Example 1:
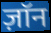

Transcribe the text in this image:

ज़ॉन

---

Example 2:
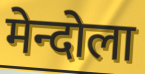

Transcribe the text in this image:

मेन्दोला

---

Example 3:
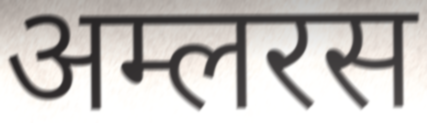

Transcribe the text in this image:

अम्लरस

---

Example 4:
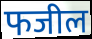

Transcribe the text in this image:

फजील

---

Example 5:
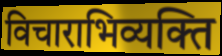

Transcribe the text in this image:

विचाराभिव्यक्ति